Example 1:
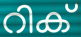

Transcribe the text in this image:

റിക്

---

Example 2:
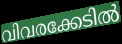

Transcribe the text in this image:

വിവരക്കേടിൽ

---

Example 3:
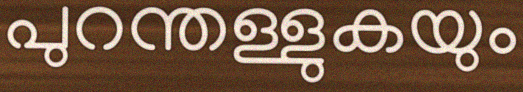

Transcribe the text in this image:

പുറന്തള്ളുകയും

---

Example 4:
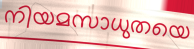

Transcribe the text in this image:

നിയമസാധുതയെ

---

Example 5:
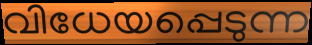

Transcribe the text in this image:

വിധേയപ്പെടുന്ന